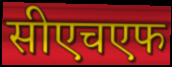
सीएचएफ